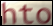
hto